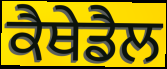
ਕੈਥੇਡੈਲ